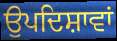
ਉਪਦਿਸ਼ਾਵਾਂ